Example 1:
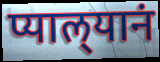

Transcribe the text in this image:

प्याल्यानं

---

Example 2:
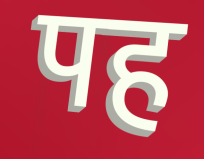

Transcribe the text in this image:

पह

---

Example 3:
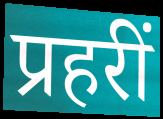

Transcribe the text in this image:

प्रहरीं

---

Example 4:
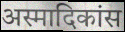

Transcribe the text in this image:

अस्मादिकांस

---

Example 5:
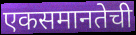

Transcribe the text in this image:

एकसमानतेची